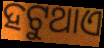
ହଟୁଥାଏ